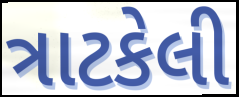
ત્રાટકેલી